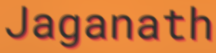
Jaganath